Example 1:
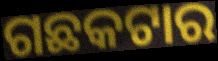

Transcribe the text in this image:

ଗଛକଟାର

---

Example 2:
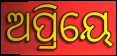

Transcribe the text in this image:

ଅପ୍ରିୟେ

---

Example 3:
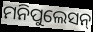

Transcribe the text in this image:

ମନିପୁଲେସନ୍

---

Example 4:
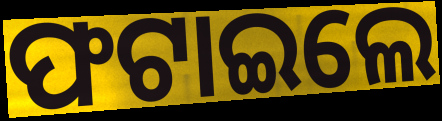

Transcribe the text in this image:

ଫଟାଇଲେ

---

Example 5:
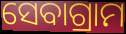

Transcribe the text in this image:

ସେବାଗ୍ରାମ